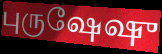
புருஷேஷு